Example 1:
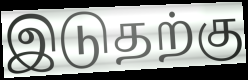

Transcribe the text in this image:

இடுதற்கு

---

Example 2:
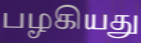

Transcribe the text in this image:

பழகியது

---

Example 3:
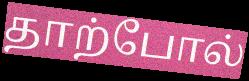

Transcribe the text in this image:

தாற்போல்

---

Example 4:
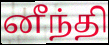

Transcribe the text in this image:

னீந்தி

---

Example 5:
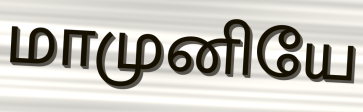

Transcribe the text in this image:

மாமுனியே